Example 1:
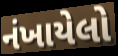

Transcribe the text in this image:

નંખાયેલો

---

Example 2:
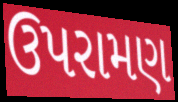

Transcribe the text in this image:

ઉપરામણ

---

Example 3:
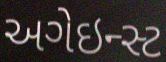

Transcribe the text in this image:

અગેઇન્સ્ટ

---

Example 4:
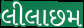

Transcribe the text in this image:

લીલાછમ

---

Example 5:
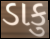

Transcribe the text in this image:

ડાકુ